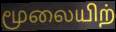
மூலையிற்